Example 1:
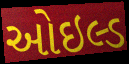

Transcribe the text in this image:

ઓઇલ્ડ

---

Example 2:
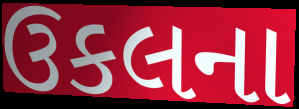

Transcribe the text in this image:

ઉકલના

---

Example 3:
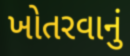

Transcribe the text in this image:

ખોતરવાનું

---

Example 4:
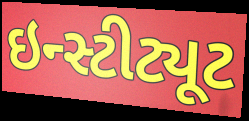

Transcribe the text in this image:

ઇન્સ્ટીટ્યૂટ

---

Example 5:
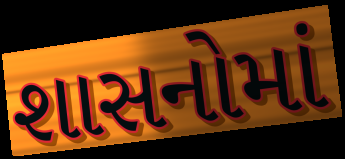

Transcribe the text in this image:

શાસનોમાં